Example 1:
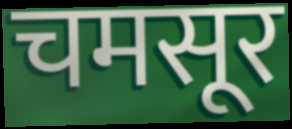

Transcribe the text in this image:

चमसूर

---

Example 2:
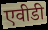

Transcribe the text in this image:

एवीडी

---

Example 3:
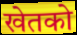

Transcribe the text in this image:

खेतको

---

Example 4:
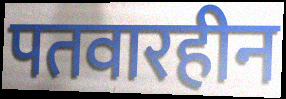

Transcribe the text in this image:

पतवारहीन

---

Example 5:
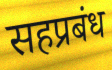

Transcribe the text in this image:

सहप्रबंध